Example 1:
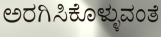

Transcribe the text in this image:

ಅರಗಿಸಿಕೊಳ್ಳುವಂತೆ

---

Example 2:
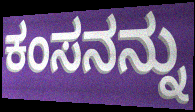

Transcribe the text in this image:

ಕಂಸನನ್ನು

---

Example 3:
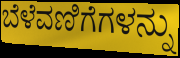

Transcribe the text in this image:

ಬೆಳೆವಣಿಗೆಗಳನ್ನು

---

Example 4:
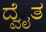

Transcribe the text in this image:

ದ್ವೈತ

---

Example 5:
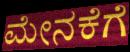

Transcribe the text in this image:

ಮೇನಕೆಗೆ